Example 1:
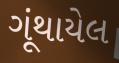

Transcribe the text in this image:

ગૂંથાયેલ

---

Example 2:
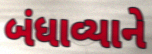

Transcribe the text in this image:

બંધાવ્યાને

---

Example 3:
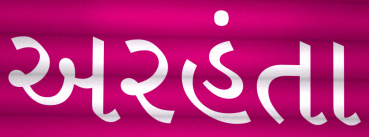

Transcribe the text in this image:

અરહંતા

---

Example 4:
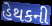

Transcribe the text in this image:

હેથકની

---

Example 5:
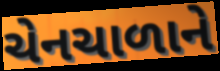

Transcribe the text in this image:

ચેનચાળાને